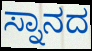
ಸ್ನಾನದ